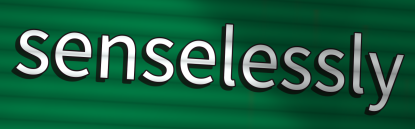
senselessly